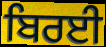
ਬਿਰਈ